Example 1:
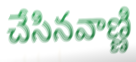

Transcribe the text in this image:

చేసినవాణ్ణి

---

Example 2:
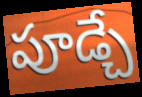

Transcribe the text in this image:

పూడ్చే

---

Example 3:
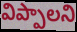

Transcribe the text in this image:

విప్పాలని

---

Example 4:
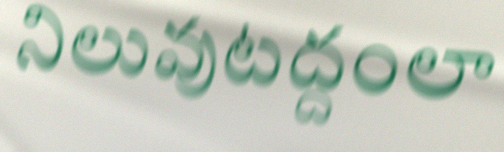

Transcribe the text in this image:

నిలువుటద్దంలా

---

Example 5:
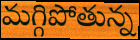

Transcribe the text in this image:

మగ్గిపోతున్న